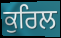
ਕੁਰਿਲ